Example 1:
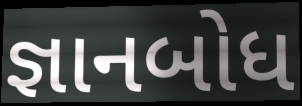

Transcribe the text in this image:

જ્ઞાનબોધ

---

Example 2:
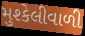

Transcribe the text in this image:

મુશ્કેલીવાળી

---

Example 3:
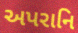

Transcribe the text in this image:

અપરાનિ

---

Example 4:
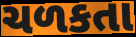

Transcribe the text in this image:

ચળકતા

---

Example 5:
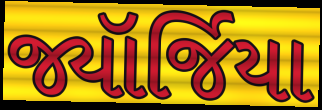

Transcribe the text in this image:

જ્યૉર્જિયા